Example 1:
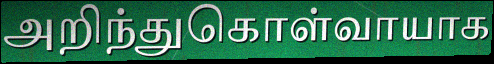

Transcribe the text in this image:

அறிந்துகொள்வாயாக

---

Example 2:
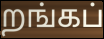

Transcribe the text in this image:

றங்கப்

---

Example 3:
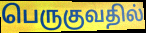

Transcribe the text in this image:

பெருகுவதில்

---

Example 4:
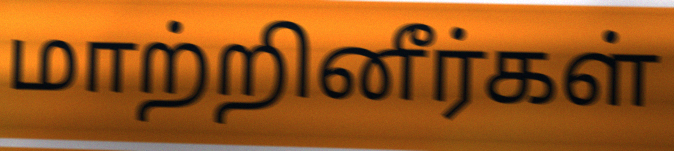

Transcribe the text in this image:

மாற்றினீர்கள்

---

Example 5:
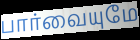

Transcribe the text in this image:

பார்வையுமே